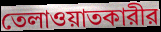
তেলাওয়াতকারীর